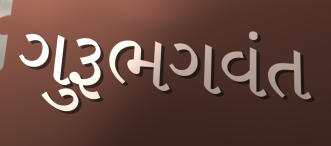
ગુરૂભગવંત